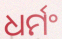
ଧର୍ମଂ